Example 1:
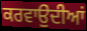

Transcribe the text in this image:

ਕਰਵਾਉੁਂਦੀਆਂ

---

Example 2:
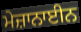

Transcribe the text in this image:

ਮੇਜ਼ਾਨਾਈਨ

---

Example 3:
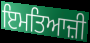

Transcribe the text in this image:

ਇਮਤਿਆਜ਼ੀ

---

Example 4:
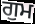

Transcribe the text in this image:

ਗੁਮ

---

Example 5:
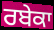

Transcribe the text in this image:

ਰਬੇਕਾ